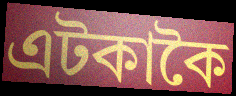
এটকাকৈ